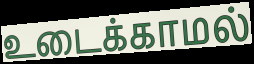
உடைக்காமல்